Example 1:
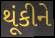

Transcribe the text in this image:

થૂંકીને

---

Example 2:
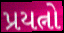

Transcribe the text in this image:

પ્રયત્નો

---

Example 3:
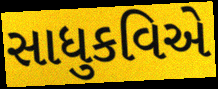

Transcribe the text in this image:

સાધુકવિએ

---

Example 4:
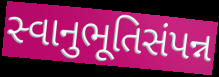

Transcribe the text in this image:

સ્વાનુભૂતિસંપન્ન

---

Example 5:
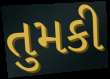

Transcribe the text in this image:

તુમકી